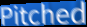
Pitched